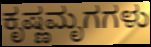
ಕೃಷ್ಣಮೃಗಗಳು